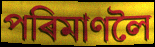
পৰিমাণলৈ